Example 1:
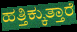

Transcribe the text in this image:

ಹತ್ತಿಕ್ಕುತ್ತಾರೆ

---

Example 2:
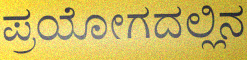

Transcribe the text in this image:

ಪ್ರಯೋಗದಲ್ಲಿನ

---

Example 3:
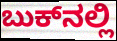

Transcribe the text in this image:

ಬುಕ್‌ನಲ್ಲಿ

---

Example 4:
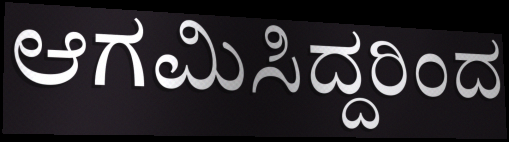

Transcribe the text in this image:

ಆಗಮಿಸಿದ್ದರಿಂದ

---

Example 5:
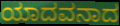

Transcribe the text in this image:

ಯಾದವನಾದ